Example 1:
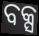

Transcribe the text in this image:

ବକ୍ସ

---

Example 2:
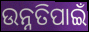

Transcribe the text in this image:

ଉନ୍ନତିପାଇଁ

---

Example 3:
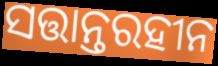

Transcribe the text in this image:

ସତ୍ତାନ୍ତରହୀନ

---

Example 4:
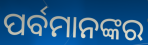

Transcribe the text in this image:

ପର୍ବମାନଙ୍କର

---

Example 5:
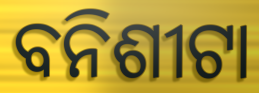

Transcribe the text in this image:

ବନିଶୀଟା